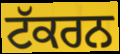
ਟੱਕਰਨ